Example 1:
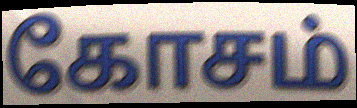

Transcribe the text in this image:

கோசம்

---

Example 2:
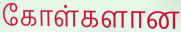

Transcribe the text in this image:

கோள்களான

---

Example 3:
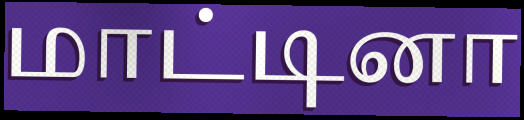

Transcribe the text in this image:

மாட்டினா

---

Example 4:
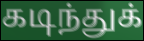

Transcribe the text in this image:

கடிந்துக்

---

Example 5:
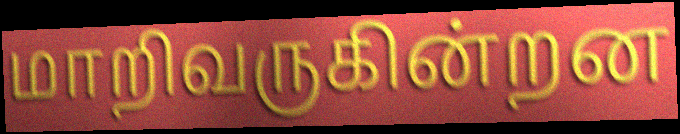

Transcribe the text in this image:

மாறிவருகின்றன